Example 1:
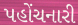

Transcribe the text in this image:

પહોંચનારી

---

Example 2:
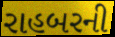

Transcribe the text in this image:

રાહબરની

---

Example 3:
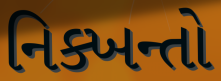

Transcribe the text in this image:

નિક્ખન્તો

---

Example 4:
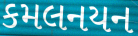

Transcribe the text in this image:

કમલનયન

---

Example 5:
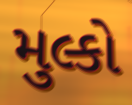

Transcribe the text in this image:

મુલ્કો